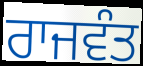
ਰਾਜਵੰਤ